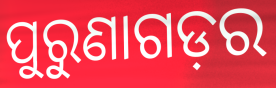
ପୁରୁଣାଗଡ଼ର